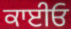
ਕਾਈਓ